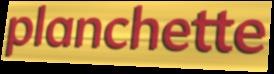
planchette